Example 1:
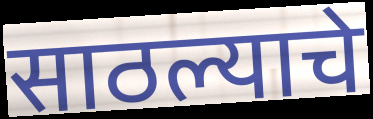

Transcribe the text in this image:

साठल्याचे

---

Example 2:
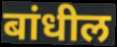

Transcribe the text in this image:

बांधील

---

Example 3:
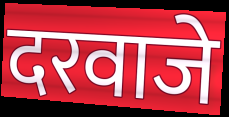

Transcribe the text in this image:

दरवाजे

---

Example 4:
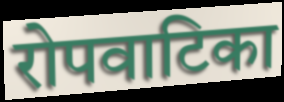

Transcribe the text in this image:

रोपवाटिका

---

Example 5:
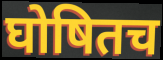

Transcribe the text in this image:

घोषितच